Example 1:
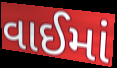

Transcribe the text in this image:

વાઈમાં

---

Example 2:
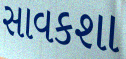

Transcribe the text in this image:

સાવકશા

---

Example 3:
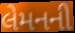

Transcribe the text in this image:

લેમનની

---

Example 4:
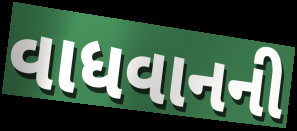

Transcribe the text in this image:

વાધવાનની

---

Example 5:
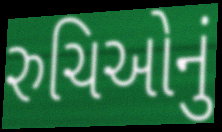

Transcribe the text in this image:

રુચિઓનું